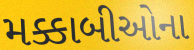
મક્કાબીઓના